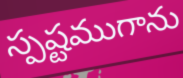
స్పష్టముగాను